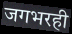
जगभरही